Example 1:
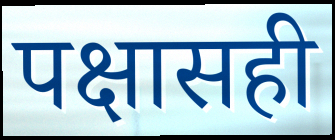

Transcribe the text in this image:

पक्षासही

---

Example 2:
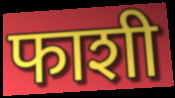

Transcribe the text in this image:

फाशी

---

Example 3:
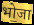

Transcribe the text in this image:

भो॒जा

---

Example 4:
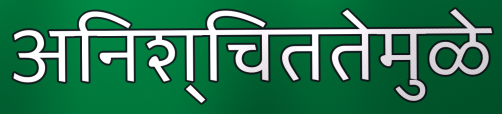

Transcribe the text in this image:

अनिश्चिततेमुळे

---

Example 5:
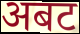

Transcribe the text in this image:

अबट